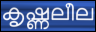
കൃഷ്ണലീല